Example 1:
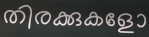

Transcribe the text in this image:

തിരക്കുകളോ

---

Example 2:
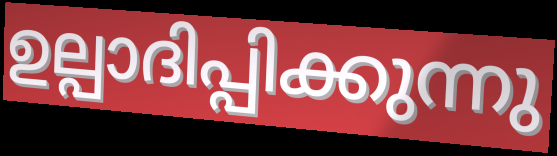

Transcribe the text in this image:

ഉല്പാദിപ്പിക്കുന്നു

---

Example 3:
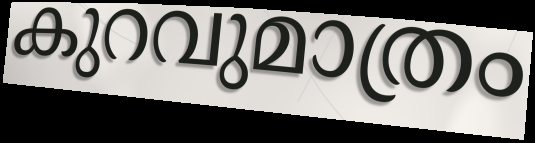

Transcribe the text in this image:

കുറവുമാത്രം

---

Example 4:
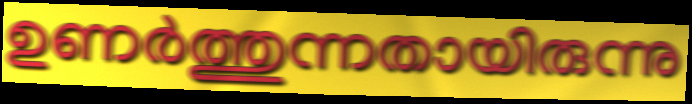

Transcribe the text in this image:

ഉണർത്തുന്നതായിരുന്നു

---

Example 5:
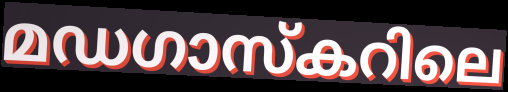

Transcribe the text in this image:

മഡഗാസ്കറിലെ